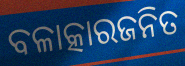
ବଳାତ୍କାରଜନିତ